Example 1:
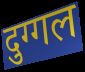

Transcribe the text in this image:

दुग्गल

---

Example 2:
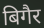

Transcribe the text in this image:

बिगैर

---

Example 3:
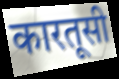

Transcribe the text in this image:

कारतूसी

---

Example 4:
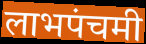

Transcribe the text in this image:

लाभपंचमी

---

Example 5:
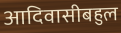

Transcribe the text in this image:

आदिवासीबहुल